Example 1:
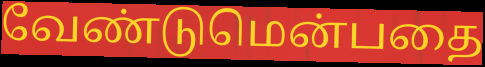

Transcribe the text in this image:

வேண்டுமென்பதை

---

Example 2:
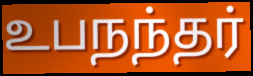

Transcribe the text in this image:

உபநந்தர்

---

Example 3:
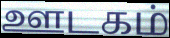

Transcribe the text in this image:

ஊடகம்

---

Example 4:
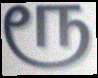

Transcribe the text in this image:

ரூ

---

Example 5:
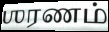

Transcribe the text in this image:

ஶரணம்